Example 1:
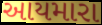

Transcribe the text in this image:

આયમારા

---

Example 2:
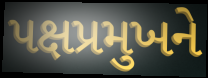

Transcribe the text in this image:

પક્ષપ્રમુખને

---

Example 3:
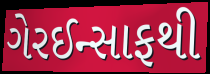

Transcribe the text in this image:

ગેરઈન્સાફથી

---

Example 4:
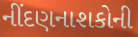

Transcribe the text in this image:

નીંદણનાશકોની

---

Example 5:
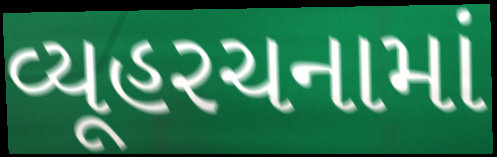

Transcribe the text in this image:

વ્યૂહરચનામાં